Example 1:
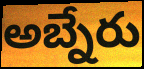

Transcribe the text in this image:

అబ్నేరు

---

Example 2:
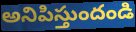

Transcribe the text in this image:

అనిపిస్తుందండి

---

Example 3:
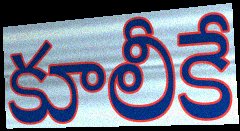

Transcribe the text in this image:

కూలీకే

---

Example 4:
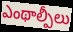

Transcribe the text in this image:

ఎంథాల్పీలు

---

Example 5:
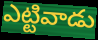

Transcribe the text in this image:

ఎట్టివాడు